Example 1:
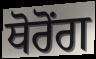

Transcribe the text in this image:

ਥੋਰੋਂਗ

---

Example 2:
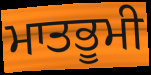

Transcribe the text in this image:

ਮਾਤਭੂਮੀ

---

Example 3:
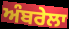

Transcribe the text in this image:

ਅੰਬਰੇਲਾ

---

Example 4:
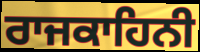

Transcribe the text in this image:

ਰਾਜਕਾਹਿਨੀ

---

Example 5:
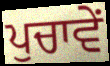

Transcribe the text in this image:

ਪੁਚਾਵੇਂ